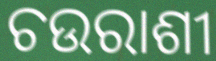
ଚଉରାଶୀ